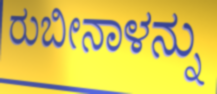
ರುಬೀನಾಳನ್ನು